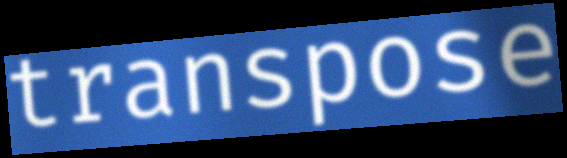
transpose